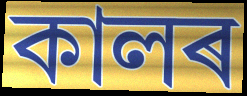
কালৰ